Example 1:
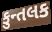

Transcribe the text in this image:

કુન્તલક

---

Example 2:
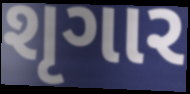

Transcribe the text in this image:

શૃગાર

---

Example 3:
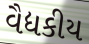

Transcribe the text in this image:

વૈદ્યકીય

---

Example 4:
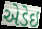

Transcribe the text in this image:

એડેઇ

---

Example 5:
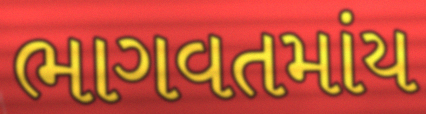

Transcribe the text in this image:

ભાગવતમાંય